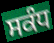
ਸਕੰਧ